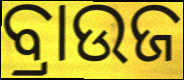
ବ୍ରାଉଜ